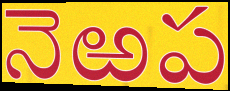
నెఱప